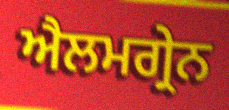
ਐਲਮਗ੍ਰੇਨ